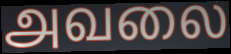
அவலை